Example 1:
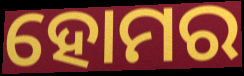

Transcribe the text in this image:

ହୋମର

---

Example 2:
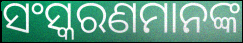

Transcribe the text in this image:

ସଂସ୍କରଣମାନଙ୍କ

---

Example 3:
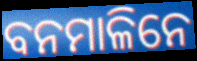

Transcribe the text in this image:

ବନମାଳିନେ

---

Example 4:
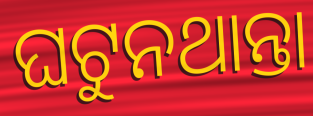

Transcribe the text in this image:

ଘଟୁନଥାନ୍ତା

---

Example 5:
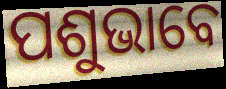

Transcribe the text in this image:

ପଶୁଭାବେ